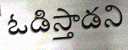
ఓడిస్తాడని